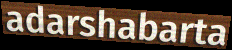
adarshabarta